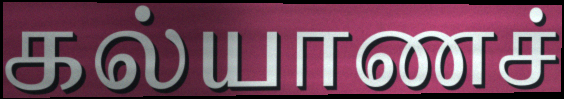
கல்யாணச்